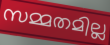
സമ്മതമില്ല